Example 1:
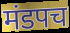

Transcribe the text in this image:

मंडपच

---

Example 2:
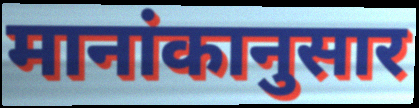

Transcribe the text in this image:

मानांकानुसार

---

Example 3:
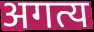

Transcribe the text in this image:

अगत्य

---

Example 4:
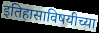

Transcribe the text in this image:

इतिहासाविषयीच्या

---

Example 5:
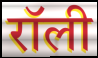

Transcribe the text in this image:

रॉली